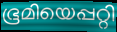
ഭൂമിയെപ്പറ്റി